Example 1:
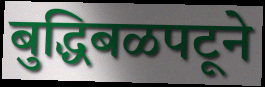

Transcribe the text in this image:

बुद्धिबळपटूने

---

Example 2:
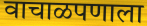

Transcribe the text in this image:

वाचाळपणाला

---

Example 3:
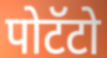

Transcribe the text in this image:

पोटॅटो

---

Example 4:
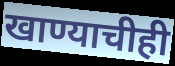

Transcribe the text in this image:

खाण्याचीही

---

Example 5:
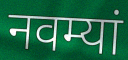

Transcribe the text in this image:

नवम्यां